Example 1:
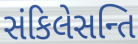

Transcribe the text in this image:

સંકિલેસન્તિ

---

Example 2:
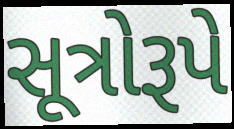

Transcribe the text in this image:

સૂત્રોરૂપે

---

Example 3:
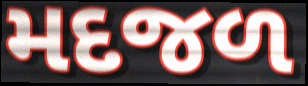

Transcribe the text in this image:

મદજળ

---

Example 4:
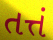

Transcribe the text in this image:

તત્તં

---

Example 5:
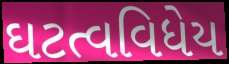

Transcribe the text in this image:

ઘટત્વવિધેય